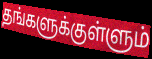
தங்களுக்குள்ளும்